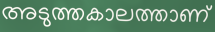
അടുത്തകാലത്താണ്